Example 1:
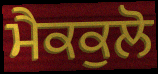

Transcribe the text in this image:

ਮੈਕਕੁਲੋ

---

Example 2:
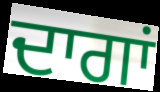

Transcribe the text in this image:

ਦਾਗਾਂ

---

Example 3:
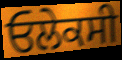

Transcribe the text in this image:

ਓਲੇਕਸੀ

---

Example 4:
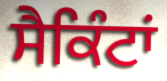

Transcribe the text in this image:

ਸੈਕਿੰਟਾਂ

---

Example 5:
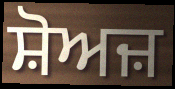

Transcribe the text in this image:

ਸ਼ੋਅਜ਼